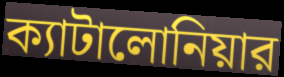
ক্যাটালোনিয়ার